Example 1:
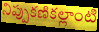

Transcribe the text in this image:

నిప్పుకణికల్లాంటి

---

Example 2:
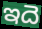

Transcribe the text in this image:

ఇదె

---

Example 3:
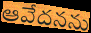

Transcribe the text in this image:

ఆవేదనను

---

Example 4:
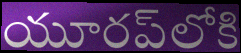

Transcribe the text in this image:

యూరప్‌లోకి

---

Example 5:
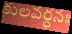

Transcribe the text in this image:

కులవర్ధనః